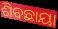
ଶିବଛାୟା